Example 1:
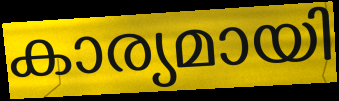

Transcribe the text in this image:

കാര്യമായി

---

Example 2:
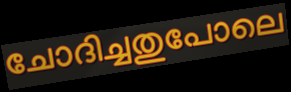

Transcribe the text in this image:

ചോദിച്ചതുപോലെ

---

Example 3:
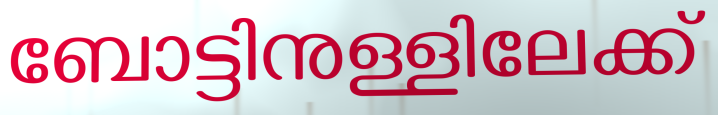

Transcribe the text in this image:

ബോട്ടിനുള്ളിലേക്ക്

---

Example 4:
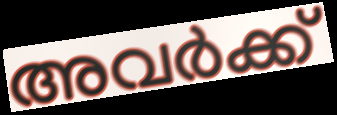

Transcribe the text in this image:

അവർക്ക്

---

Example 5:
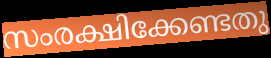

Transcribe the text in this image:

സംരക്ഷിക്കേണ്ടതു